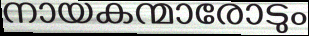
നായകന്മാരോടും